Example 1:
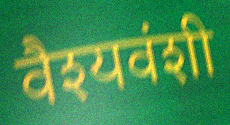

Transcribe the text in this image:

वैश्यवंशी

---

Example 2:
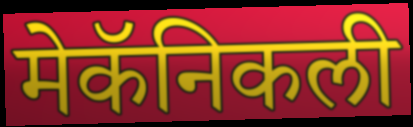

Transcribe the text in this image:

मेकॅनिकली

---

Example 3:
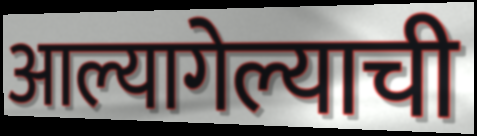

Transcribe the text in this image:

आल्यागेल्याची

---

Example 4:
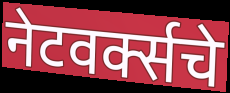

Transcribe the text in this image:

नेटवर्क्सचे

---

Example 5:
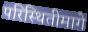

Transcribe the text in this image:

परिस्थितीमागे